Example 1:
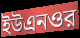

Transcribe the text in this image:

ইউএনওর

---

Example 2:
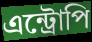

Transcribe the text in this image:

এন্ট্রোপি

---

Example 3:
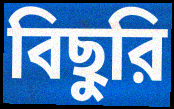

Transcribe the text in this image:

বিছুরি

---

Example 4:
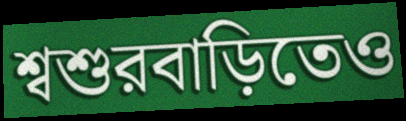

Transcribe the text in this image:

শ্বশুরবাড়িতেও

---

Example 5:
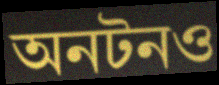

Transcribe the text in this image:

অনটনও